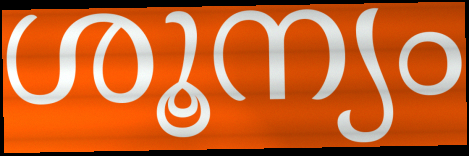
ശൂന്യം